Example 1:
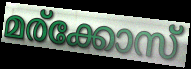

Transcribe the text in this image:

മര്ക്കോസ്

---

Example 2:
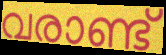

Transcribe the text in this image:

വരാണ്ട്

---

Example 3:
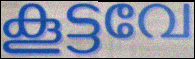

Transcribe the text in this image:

കൂട്ടവേ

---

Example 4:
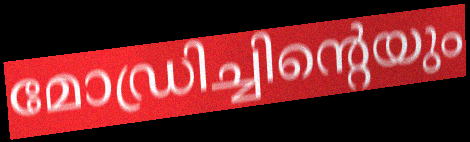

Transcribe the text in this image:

മോഡ്രിച്ചിന്റെയും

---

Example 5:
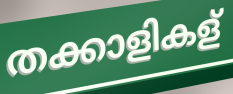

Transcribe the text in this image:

തക്കാളികള്